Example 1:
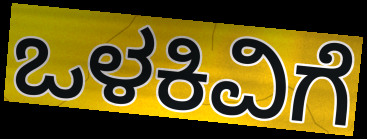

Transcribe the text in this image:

ಒಳಕಿವಿಗೆ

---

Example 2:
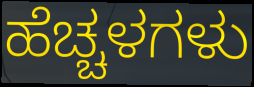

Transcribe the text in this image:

ಹೆಚ್ಚಳಗಳು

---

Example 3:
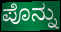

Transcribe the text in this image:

ಪೊನ್ನು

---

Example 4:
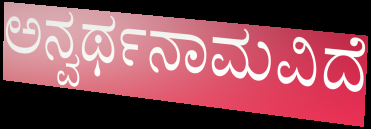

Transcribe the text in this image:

ಅನ್ವರ್ಥನಾಮವಿದೆ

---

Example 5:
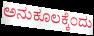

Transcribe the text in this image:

ಅನುಕೂಲಕ್ಕೆಂದು